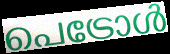
പെട്രോൾ